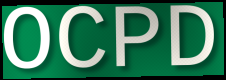
OCPD